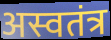
अस्वतंत्र